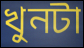
খুনটা